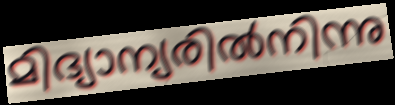
മിദ്യാന്യരിൽനിന്നു